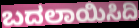
ಬದಲಾಯಿಸಿದಿ